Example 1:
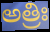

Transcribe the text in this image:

అత్రిః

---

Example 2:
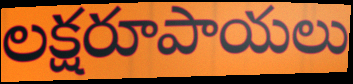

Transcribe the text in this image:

లక్షరూపాయలు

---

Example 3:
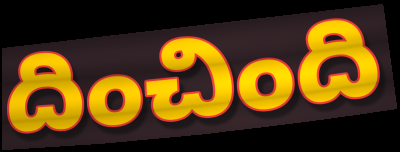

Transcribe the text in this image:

దించింది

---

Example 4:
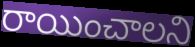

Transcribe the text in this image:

రాయించాలని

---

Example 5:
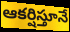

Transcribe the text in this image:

ఆకర్షిస్తూనే